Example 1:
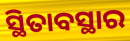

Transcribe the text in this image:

ସ୍ଥିତାବସ୍ଥାର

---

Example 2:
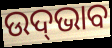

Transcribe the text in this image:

ଉଦ୍‍ଭାବ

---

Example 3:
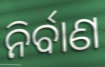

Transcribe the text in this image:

ନିର୍ବାଣ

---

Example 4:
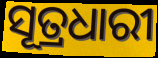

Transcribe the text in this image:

ସୂତ୍ରଧାରୀ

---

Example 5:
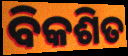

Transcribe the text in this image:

ବିକଶିତ